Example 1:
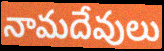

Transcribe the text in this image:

నామదేవులు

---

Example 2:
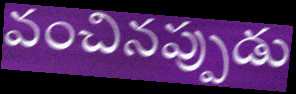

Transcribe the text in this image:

వంచినప్పుడు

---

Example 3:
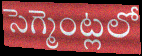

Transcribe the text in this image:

సెగ్మెంట్లలో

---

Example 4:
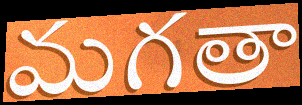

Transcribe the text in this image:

మగతా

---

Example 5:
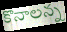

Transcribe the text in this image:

కొనాలన్న